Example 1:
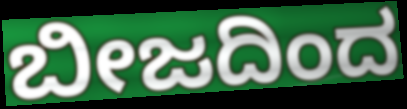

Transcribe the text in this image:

ಬೀಜದಿಂದ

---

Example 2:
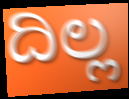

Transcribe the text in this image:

ದಿಲ್ಲ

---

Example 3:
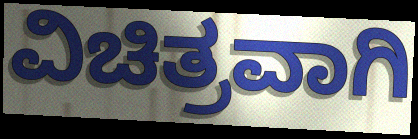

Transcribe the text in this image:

ವಿಚಿತ್ರವಾಗಿ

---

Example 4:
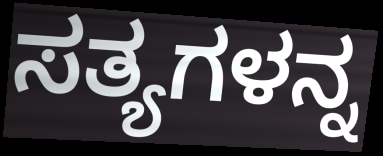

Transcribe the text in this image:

ಸತ್ಯಗಳನ್ನ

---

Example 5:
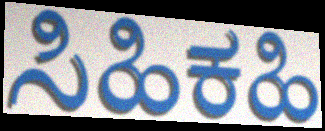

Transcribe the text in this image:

ಸಿಹಿಕಹಿ